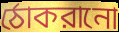
ঠোকরানো